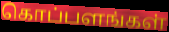
கொப்பளங்கள்